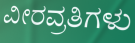
ವೀರವ್ರತಿಗಳು